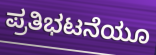
ಪ್ರತಿಭಟನೆಯೂ